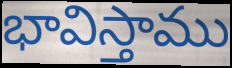
భావిస్తాము